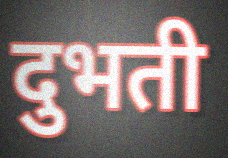
दुभती